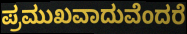
ಪ್ರಮುಖವಾದುವೆಂದರೆ